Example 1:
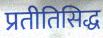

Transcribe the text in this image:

प्रतीतिसिद्ध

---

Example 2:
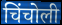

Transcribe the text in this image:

चिंचोली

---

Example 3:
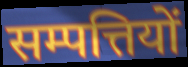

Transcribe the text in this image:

सम्‍पत्तियों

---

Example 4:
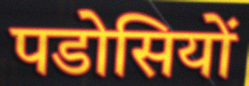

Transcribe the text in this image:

पडोसियों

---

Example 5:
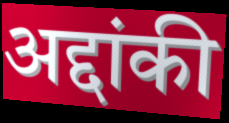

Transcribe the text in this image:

अद्दांकी